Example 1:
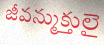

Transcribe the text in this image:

జీవన్ముక్తులై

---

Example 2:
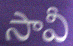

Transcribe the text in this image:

సావీ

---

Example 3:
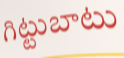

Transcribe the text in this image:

గిట్టుబాటు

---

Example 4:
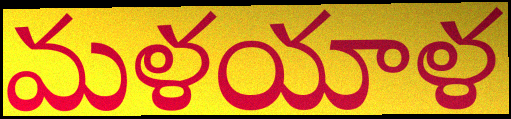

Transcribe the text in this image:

మళయాళ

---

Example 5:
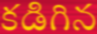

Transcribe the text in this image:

కడిగిన